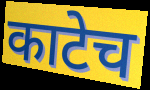
काटेच